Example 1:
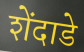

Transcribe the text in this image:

शेंदाडे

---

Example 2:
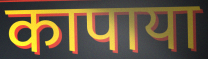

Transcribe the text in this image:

कापाया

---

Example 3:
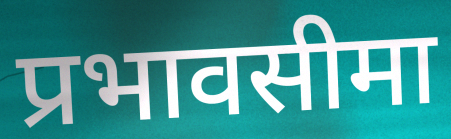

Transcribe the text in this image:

प्रभावसीमा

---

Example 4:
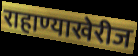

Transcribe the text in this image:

राहाण्याखेरीज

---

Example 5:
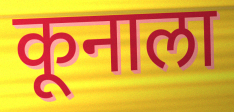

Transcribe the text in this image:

कूनाला